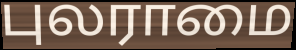
புலராமை